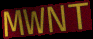
MWNT